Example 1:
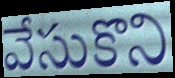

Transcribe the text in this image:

వేసుకొని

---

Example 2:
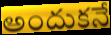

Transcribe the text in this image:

అందుకనే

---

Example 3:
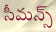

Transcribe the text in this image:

సీమన్స్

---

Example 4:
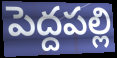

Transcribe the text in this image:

పెద్దపల్లి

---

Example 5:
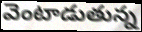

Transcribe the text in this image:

వెంటాడుతున్న